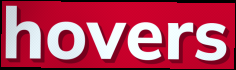
hovers